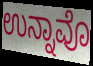
ಉನ್ನಾವೊ